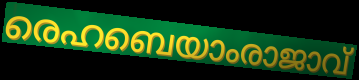
രെഹബെയാംരാജാവ്